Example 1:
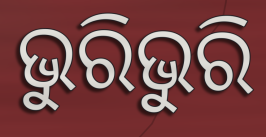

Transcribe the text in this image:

ଭୁରିଭୁରି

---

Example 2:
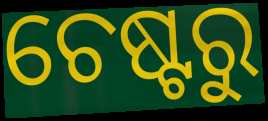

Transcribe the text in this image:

ଚେଷ୍ଟରୁ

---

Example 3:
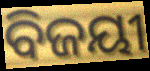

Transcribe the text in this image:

ବିଜୟୀ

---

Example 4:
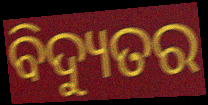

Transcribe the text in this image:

ବିଦ୍ୟୁତର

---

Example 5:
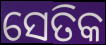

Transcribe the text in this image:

ସେତିକ